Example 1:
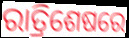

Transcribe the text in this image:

ରାତ୍ରିଶେଷରେ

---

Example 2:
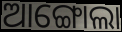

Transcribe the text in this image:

ଆଙ୍ଗୋଲା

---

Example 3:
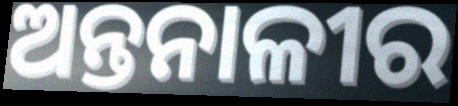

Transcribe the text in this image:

ଅନ୍ତନାଳୀର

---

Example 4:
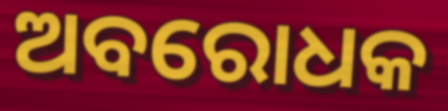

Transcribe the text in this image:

ଅବରୋଧକ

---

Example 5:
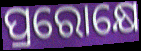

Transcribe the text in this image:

ପ୍ରରୋକ୍ଷେ